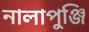
নালাপুঞ্জি